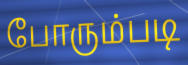
போரும்படி